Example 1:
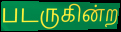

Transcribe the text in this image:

படருகின்ற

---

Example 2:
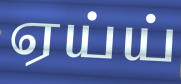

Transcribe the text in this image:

ஏய்ய்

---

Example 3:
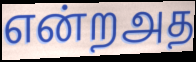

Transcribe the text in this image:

என்றஅத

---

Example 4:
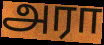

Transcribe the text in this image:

அரா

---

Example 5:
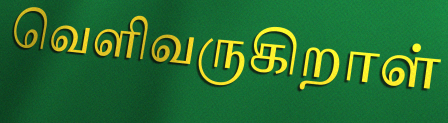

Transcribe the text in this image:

வெளிவருகிறாள்